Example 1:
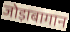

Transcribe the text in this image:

जोड़ाबागान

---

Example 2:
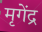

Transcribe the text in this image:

मृगेंद्र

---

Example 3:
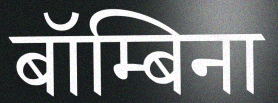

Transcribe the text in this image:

बॉम्बिना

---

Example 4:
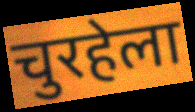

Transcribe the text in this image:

चुरहेला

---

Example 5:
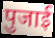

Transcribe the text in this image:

पुजाई